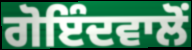
ਗੋਇੰਦਵਾਲੋਂ